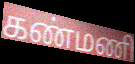
கண்மணி